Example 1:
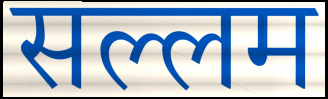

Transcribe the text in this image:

सल्लम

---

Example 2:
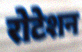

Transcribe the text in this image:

रोटेशन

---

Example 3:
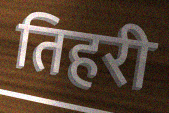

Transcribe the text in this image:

तिहरी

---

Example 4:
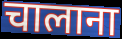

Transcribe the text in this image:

चालाना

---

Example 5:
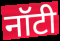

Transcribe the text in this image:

नॉटी